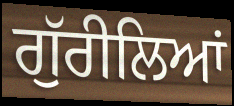
ਗੁੱਰੀਲਿਆਂ